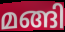
മങ്ങി